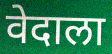
वेदाला